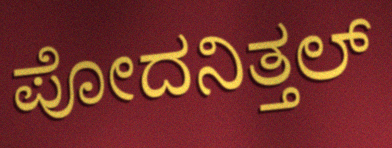
ಪೋದನಿತ್ತಲ್